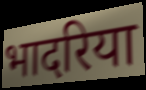
भादरिया